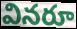
వినరూ